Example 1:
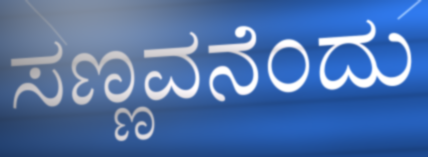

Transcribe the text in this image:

ಸಣ್ಣವನೆಂದು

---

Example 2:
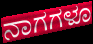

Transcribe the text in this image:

ನಾಗಗಳೂ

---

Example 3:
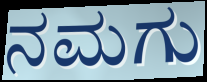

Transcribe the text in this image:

ನಮಗು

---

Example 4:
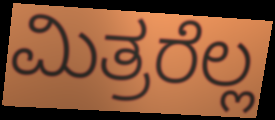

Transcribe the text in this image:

ಮಿತ್ರರೆಲ್ಲ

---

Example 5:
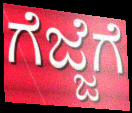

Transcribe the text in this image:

ಗೆಜ್ಜೆಗೆ